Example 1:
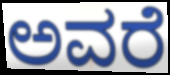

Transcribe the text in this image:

ಅವರೆ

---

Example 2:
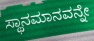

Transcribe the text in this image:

ಸ್ಥಾನಮಾನವನ್ನೇ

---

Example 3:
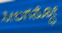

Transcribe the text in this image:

ಸೀಲಗನ್ಧೋ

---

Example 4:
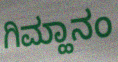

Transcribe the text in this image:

ಗಿಮ್ಹಾನಂ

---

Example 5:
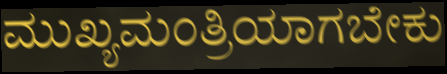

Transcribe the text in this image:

ಮುಖ್ಯಮಂತ್ರಿಯಾಗಬೇಕು